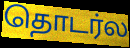
தொடர்ல